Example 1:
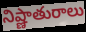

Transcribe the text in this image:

నిష్ణాతురాలు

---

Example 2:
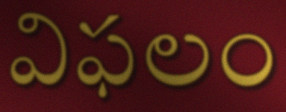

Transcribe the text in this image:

విఫలం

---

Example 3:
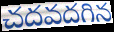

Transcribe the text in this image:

చదవదగిన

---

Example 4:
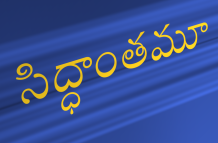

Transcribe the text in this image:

సిద్ధాంతమూ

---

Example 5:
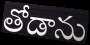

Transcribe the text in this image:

తోడాను